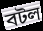
বটল